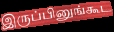
இருப்பினுங்கூட